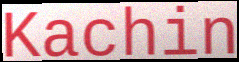
Kachin